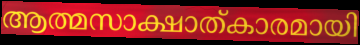
ആത്മസാക്ഷാത്കാരമായി